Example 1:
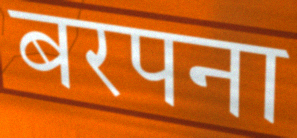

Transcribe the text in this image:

बरपना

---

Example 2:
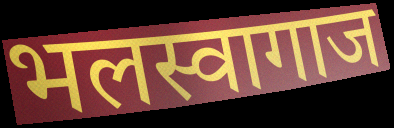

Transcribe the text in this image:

भलस्वागाज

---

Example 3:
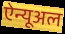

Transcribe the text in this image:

ऐन्यूअल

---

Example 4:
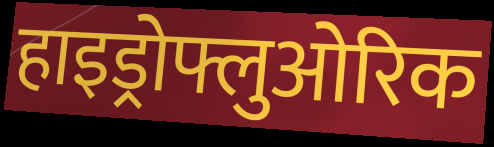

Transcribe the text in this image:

हाइड्रोफ्लुओरिक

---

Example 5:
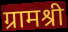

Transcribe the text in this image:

ग्रामश्री